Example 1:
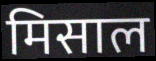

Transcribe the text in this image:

मिसाल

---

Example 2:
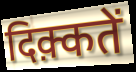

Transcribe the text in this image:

दिक़्कतें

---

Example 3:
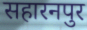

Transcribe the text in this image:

सहारनपुर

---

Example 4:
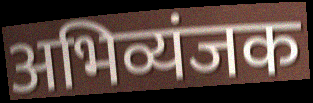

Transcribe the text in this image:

अभिव्यंजक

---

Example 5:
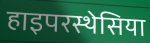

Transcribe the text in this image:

हाइपरस्थेसिया